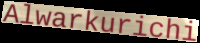
Alwarkurichi